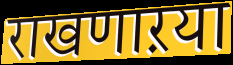
राखणाऱया